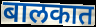
बालकात